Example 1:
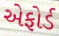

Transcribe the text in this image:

એફોર્ડ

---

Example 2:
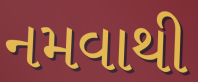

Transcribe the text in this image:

નમવાથી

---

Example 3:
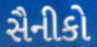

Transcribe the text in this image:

સૈનીકો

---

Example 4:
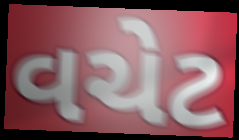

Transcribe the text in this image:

વચેટ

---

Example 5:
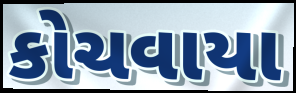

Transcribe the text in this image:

કોચવાયા